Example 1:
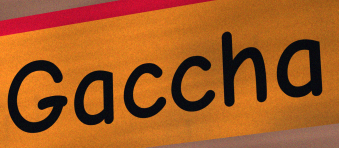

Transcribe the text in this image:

Gaccha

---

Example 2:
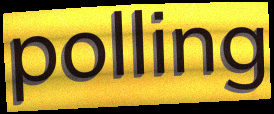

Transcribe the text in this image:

polling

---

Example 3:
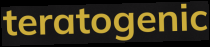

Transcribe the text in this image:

teratogenic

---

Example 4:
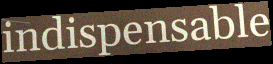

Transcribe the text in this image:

indispensable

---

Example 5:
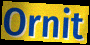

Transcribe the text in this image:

Ornit